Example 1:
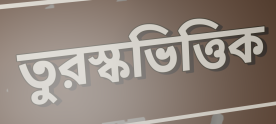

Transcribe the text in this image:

তুরস্কভিত্তিক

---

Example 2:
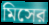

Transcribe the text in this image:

মিসের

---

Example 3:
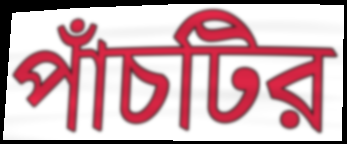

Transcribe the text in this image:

পাঁচটির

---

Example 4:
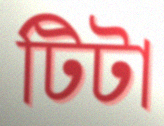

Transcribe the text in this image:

টিটা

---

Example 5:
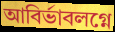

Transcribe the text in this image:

আবির্ভাবলগ্নে